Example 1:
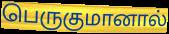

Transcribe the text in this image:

பெருகுமானால்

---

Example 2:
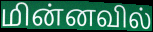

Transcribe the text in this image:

மின்னவில்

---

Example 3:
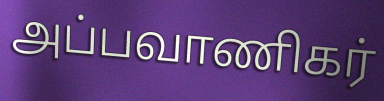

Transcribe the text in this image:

அப்பவாணிகர்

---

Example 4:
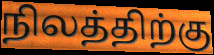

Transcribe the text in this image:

நிலத்திற்கு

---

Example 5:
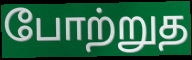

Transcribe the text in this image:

போற்றுத